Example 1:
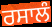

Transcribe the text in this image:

ਰਸਾਲੰ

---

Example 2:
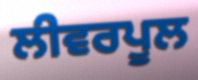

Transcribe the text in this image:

ਲੀਵਰਪੂਲ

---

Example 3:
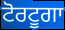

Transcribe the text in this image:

ਟੋਰਟੂਗਾ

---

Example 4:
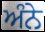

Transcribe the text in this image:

ਅੰਨੇ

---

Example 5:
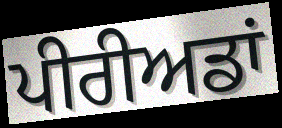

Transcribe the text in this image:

ਪੀਰੀਅਡਾਂ